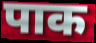
पाक